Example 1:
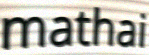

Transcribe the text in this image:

mathai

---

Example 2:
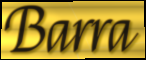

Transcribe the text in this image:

Barra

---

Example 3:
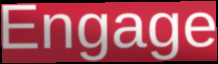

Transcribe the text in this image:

Engage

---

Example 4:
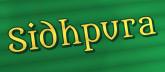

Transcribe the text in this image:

Sidhpura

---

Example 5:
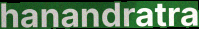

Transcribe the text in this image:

hanandratra